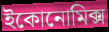
ইকোনোমিক্স